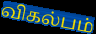
விகல்பம்